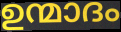
ഉന്മാദം